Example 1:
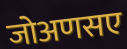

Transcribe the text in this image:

जोअणसए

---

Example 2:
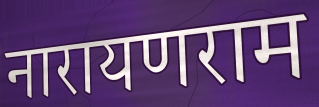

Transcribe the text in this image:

नारायणराम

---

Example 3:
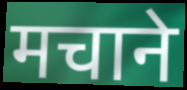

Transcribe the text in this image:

मचाने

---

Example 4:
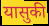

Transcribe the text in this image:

यासुकी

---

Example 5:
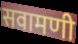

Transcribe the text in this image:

सवामणी